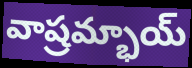
వాష్రమ్భాయ్